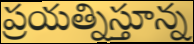
ప్రయత్నిస్తూన్న